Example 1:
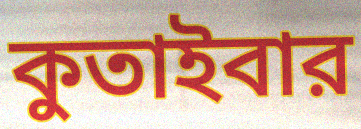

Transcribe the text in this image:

কুতাইবার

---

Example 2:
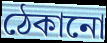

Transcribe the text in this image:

ঠেকানো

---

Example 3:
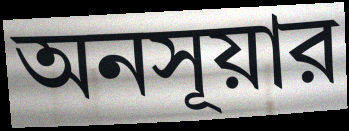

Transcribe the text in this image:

অনসূয়ার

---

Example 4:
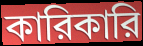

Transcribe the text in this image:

কারিকারি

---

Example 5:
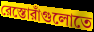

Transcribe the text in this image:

রেস্তোরাঁগুলোতে